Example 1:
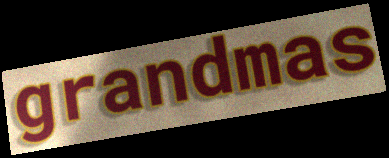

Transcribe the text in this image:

grandmas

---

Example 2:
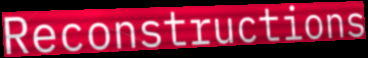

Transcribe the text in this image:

Reconstructions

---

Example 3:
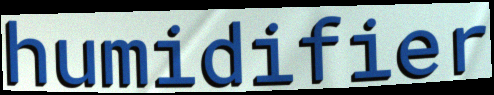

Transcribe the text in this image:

humidifier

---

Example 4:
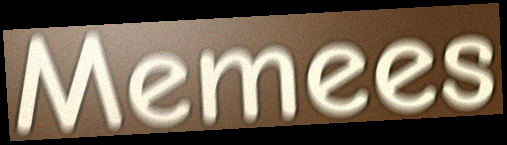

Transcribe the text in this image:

Memees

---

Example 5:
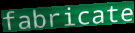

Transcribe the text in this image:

fabricate